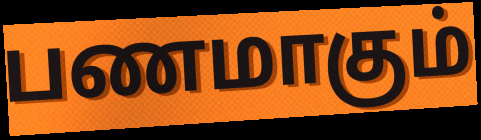
பணமாகும்